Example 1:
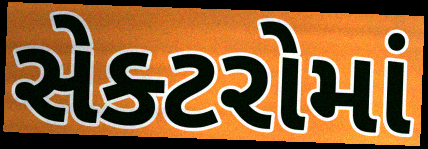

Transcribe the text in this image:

સેક્ટરોમાં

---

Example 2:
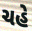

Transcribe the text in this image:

ચહે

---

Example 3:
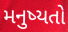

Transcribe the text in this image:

મનુષ્યતો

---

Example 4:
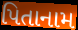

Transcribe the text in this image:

પિતાનામ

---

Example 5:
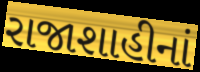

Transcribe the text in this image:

રાજાશાહીનાં